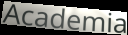
Academia